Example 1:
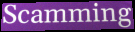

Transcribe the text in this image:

Scamming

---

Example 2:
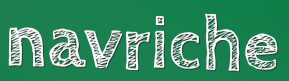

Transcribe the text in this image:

navriche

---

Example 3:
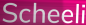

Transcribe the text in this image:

Scheeli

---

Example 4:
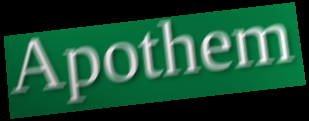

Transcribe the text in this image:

Apothem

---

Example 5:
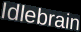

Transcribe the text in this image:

Idlebrain